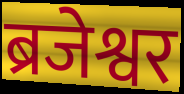
ब्रजेश्वर